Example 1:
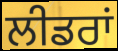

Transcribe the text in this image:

ਲੀਡਰਾਂ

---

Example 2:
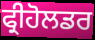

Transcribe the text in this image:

ਫ੍ਰੀਹੋਲਡਰ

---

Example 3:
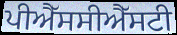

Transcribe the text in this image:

ਪੀਐੱਸਸੀਐੱਸਟੀ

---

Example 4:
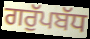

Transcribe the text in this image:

ਗਰੁੱਪਬੱਧ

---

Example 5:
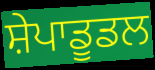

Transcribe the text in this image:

ਸ਼ੇਪਾਡੂਡਲ